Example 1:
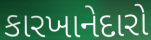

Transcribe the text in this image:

કારખાનેદારો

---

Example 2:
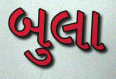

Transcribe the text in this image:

બુલા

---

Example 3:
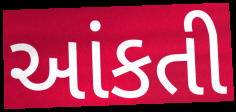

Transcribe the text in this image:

આંકતી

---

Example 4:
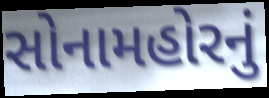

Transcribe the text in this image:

સોનામહોરનું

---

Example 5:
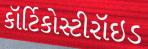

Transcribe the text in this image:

કૉર્ટિકોસ્ટીરૉઇડ